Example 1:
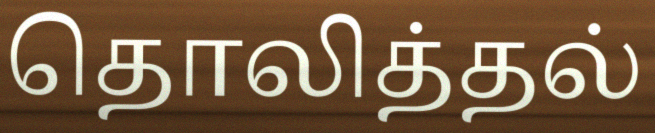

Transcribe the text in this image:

தொலித்தல்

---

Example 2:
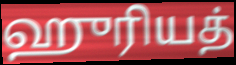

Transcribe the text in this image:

ஹுரியத்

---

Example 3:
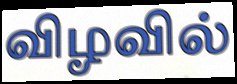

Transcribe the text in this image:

விழவில்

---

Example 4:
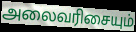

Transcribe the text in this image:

அலைவரிசையும்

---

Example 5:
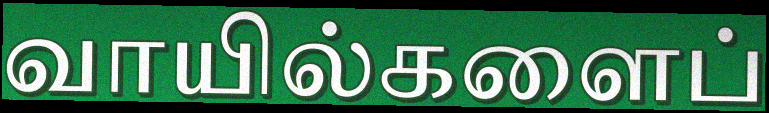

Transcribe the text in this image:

வாயில்களைப்